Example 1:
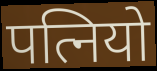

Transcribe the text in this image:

पत्नियो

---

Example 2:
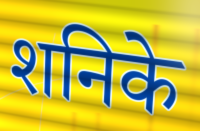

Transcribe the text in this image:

शनिके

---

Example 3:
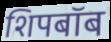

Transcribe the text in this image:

शिपबॉब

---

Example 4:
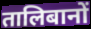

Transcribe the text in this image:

तालिबानों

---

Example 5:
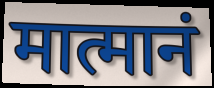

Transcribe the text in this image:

मात्मानं